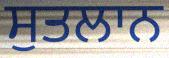
ਸੁਤਲਾਨ